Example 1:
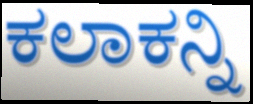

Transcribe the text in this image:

ಕಲಾಕನ್ನಿ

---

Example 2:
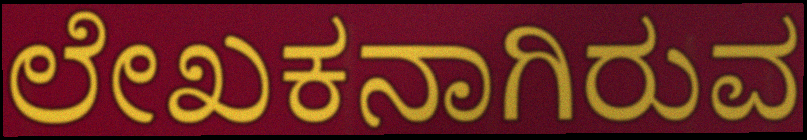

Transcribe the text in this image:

ಲೇಖಕನಾಗಿರುವ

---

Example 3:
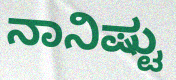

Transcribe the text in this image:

ನಾನಿಷ್ಟು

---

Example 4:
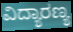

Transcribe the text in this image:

ವಿದ್ಯಾರಣ್ಯ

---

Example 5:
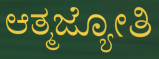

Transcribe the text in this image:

ಆತ್ಮಜ್ಯೋತಿ